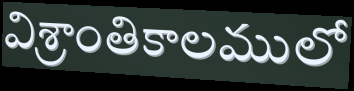
విశ్రాంతికాలములో